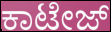
ಕಾಟೇಜ್